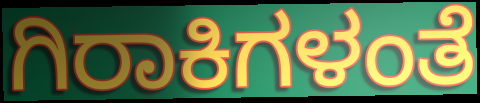
ಗಿರಾಕಿಗಳಂತೆ